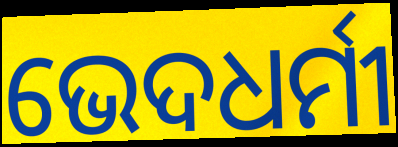
ଭେଦଧର୍ମୀ